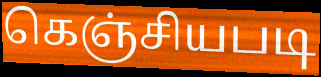
கெஞ்சியபடி